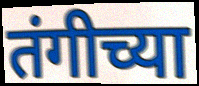
तंगीच्या